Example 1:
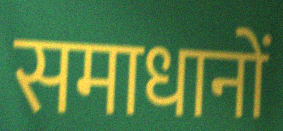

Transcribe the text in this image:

समाधानों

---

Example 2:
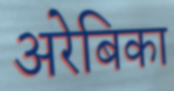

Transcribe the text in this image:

अरेबिका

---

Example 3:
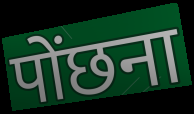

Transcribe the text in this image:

पोंछना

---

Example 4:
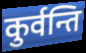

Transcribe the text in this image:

कुर्वन्ति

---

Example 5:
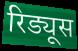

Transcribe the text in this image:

रिड्यूस